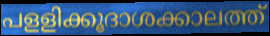
പളളിക്കൂദാശക്കാലത്ത്